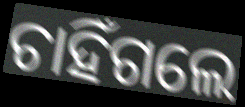
ଚାହିଁଗଲେ